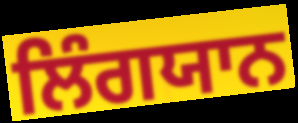
ਲਿੰਗਯਾਨ